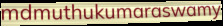
mdmuthukumaraswamy